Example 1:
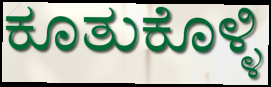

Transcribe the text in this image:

ಕೂತುಕೊಳ್ಳಿ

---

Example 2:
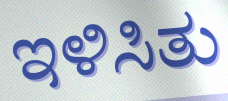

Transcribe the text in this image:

ಇಳಿಸಿತು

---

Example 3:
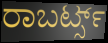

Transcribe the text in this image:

ರಾಬರ್ಟ್ಸ್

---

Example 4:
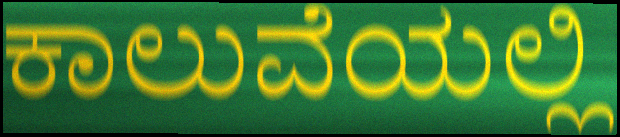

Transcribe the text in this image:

ಕಾಲುವೆಯಲ್ಲಿ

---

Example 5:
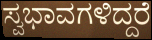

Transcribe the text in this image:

ಸ್ವಭಾವಗಳಿದ್ದರೆ